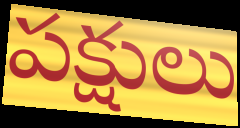
పక్షులు